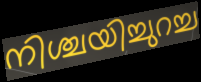
നിശ്ചയിച്ചുറച്ച